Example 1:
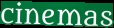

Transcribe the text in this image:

cinemas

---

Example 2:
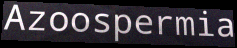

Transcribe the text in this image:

Azoospermia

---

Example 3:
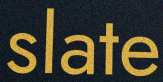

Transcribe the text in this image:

slate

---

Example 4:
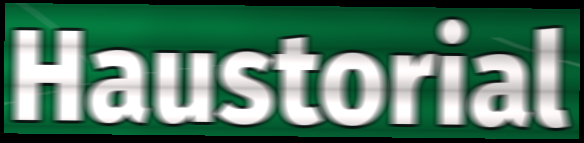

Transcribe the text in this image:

Haustorial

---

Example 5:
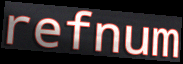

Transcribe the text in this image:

refnum